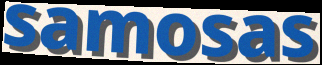
samosas